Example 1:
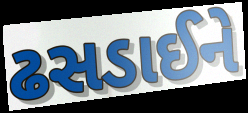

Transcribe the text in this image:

ઢસડાઈને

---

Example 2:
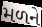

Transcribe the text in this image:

મળને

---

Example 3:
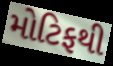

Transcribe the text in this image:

મોટિફથી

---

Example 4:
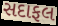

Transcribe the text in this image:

સદાફલ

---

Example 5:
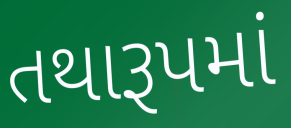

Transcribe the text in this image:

તથારૂપમાં